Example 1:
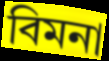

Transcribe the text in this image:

বিমনা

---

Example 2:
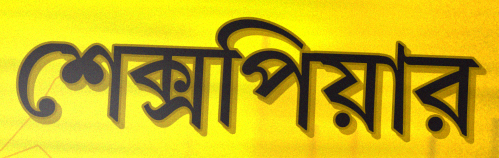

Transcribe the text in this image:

শেক্সপিয়ার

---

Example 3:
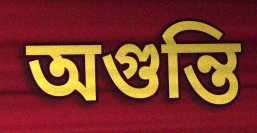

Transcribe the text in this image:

অগুন্তি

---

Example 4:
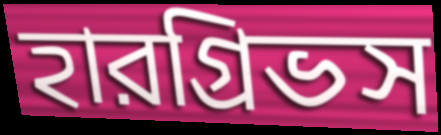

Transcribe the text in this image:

হারগ্রিভস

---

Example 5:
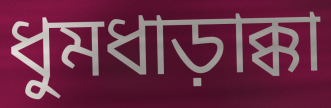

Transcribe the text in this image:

ধুমধাড়াক্কা